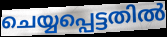
ചെയ്യപ്പെട്ടതിൽ